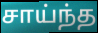
சாய்ந்த